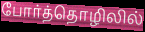
போர்த்தொழிலில்